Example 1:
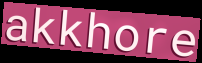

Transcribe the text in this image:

akkhore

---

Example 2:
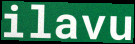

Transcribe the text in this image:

ilavu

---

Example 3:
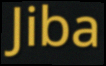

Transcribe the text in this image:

Jiba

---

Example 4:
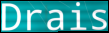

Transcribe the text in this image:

Drais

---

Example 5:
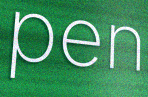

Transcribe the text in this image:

pen